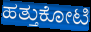
ಹತ್ತುಕೋಟಿ